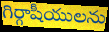
గిర్గాషీయులను